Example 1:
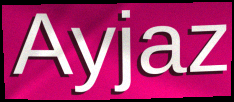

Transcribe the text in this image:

Ayjaz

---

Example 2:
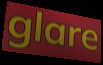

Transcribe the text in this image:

glare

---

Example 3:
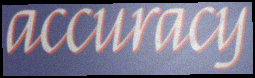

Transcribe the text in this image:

accuracy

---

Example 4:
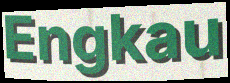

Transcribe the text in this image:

Engkau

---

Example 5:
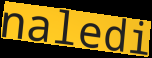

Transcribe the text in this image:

naledi